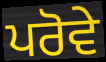
ਪਰੋਵੇ